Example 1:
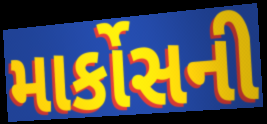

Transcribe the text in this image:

માર્કોસની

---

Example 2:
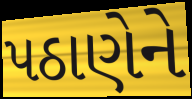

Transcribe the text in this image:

પઠાણેને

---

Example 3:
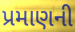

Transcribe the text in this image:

પ્રમાણની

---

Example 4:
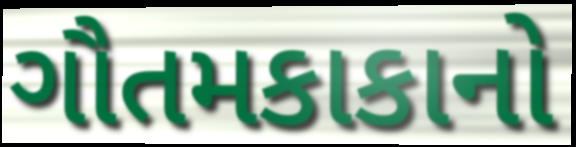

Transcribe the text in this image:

ગૌતમકાકાનો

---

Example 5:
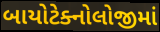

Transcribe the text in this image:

બાયોટેક્નોલોજીમાં